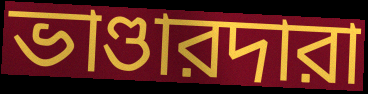
ভাণ্ডারদারা